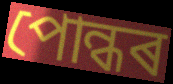
পোন্ধৰ